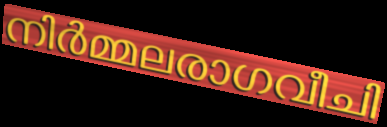
നിർമ്മലരാഗവീചി